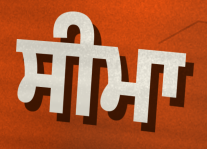
ਸੀਮਾ